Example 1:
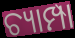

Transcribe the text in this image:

ଚ୍ୟାମ୍ପା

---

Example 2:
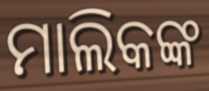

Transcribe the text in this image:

ମାଲିକଙ୍କ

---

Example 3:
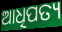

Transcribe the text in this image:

ଆଧିପତ୍ୟ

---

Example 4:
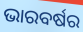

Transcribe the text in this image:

ଭାରବର୍ଷର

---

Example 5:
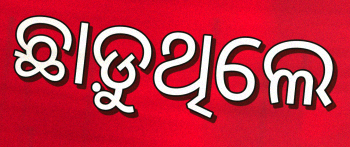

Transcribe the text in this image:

ଛାଡ଼ୁଥିଲେ